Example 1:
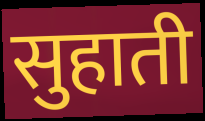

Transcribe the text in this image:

सुहाती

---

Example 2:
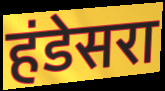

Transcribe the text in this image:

हंडेसरा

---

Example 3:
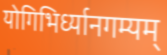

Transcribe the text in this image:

योगिभिर्ध्यानगम्यम्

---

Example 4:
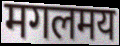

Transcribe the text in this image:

मगलमय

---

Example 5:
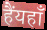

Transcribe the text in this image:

हैंयहाँ